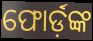
ଫୋର୍ଡ଼ଙ୍କ